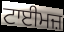
ਟਾਈਮਜ਼